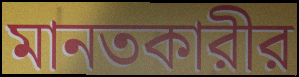
মানতকারীর